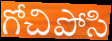
గోచిపోసి